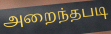
அறைந்தபடி